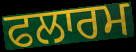
ਫਲਾਰਮ